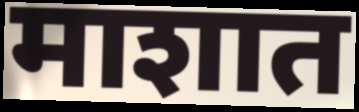
माशात